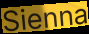
Sienna